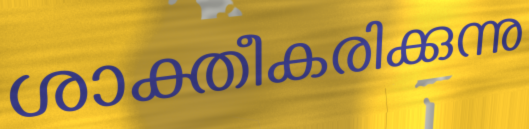
ശാക്തീകരിക്കുന്നു